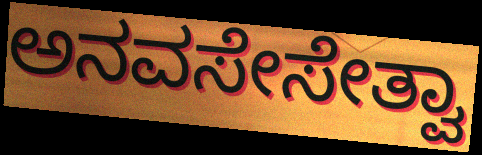
ಅನವಸೇಸೇತ್ವಾ